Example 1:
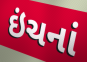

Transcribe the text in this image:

ઇંચનાં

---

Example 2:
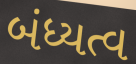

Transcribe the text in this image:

બંધ્યત્વ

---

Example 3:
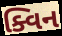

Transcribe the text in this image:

ક્વિન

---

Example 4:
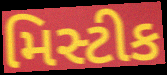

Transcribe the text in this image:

મિસ્ટીક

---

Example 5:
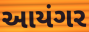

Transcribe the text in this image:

આયંગર